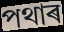
পথাৰ